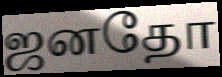
ஜனதோ